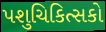
પશુચિકિત્સકો